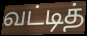
வட்டித்